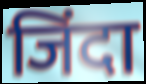
जिंदा